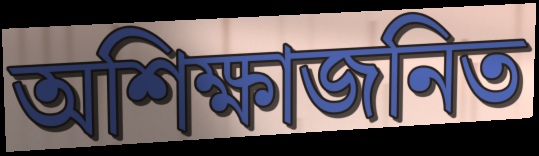
অশিক্ষাজনিত